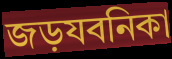
জড়যবনিকা